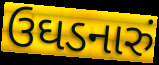
ઉઘડનારું